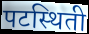
पटस्थिती